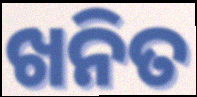
ଖନିତ